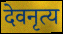
देवनृत्य